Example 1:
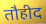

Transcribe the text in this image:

तौहीद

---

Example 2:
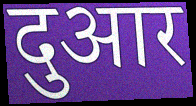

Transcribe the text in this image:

दुआर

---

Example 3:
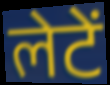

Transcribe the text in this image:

लेटें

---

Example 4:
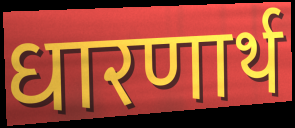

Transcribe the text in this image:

धारणार्थ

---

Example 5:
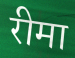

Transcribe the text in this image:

रीमा